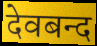
देवबन्द